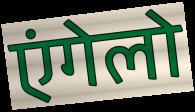
एंगेलो